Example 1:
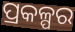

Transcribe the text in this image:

ପ୍ରକଳ୍ପର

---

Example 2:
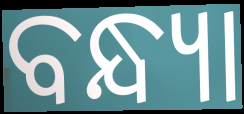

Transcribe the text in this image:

ବନ୍ଧ୍ଯା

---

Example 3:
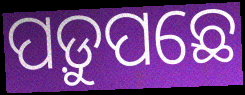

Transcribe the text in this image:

ପଡ଼ୁପଛେ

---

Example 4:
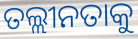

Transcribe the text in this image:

ତଲ୍ଲୀନତାକୁ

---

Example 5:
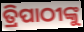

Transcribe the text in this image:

ତ୍ରିପାଠୀଙ୍କୁ